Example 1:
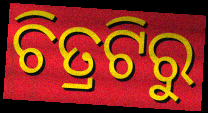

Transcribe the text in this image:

ଚିତ୍ରଟିରୁ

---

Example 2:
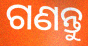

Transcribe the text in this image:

ଗଣନ୍ତୁ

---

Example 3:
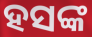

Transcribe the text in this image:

ହସଙ୍କ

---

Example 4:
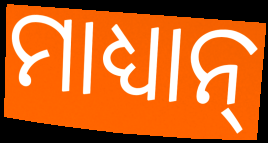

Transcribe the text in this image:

ମାଧ୍ୟାନ୍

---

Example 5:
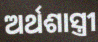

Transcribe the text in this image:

ଅର୍ଥଶାସ୍ତ୍ରୀ